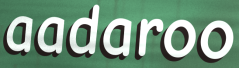
aadaroo